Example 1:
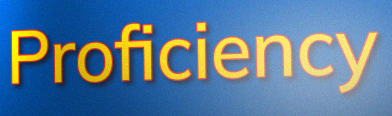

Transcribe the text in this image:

Proficiency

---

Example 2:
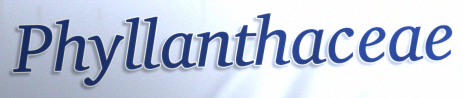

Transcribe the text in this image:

Phyllanthaceae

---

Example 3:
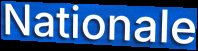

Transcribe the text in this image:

Nationale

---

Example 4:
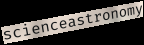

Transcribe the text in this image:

scienceastronomy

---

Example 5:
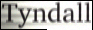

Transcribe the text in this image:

Tyndall